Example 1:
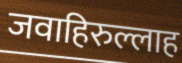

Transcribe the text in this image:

जवाहिरुल्लाह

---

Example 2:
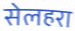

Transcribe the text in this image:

सेलहरा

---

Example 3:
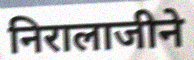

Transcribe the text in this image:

निरालाजीने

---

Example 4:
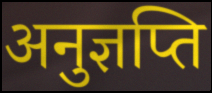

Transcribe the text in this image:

अनुज्ञप्ति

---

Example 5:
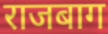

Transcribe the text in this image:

राजबाग